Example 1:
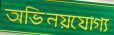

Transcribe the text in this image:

অভিনয়যোগ্য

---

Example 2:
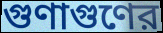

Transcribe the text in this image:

গুণাগুণের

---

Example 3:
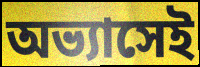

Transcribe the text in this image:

অভ্যাসেই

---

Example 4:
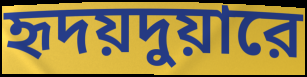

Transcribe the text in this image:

হৃদয়দুয়ারে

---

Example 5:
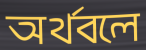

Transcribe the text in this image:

অর্থবলে